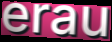
erau